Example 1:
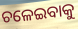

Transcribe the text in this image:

ଚଳେଇବାକୁ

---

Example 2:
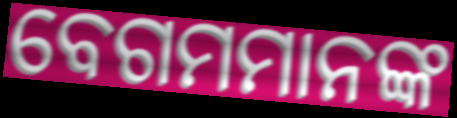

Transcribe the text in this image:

ବେଗମମାନଙ୍କ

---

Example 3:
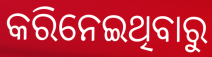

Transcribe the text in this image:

କରିନେଇଥିବାରୁ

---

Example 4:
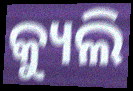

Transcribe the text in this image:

କ୍ୟୁଲି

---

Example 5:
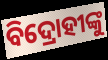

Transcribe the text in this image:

ବିଦ୍ରୋହୀଙ୍କୁ